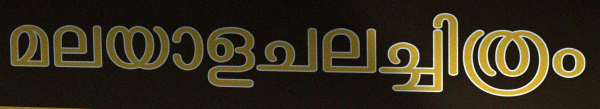
മലയാളചലച്ചിത്രം